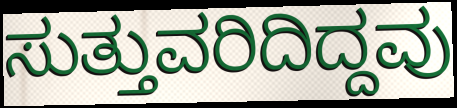
ಸುತ್ತುವರಿದಿದ್ದವು